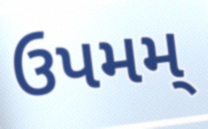
ઉપમમ્